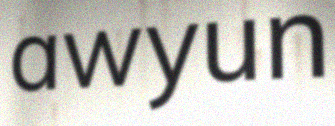
awyun